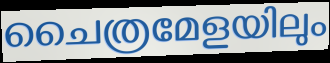
ചൈത്രമേളയിലും